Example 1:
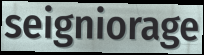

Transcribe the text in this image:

seigniorage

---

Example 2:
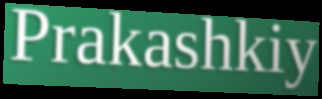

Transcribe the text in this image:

Prakashkiy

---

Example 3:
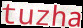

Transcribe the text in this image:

tuzha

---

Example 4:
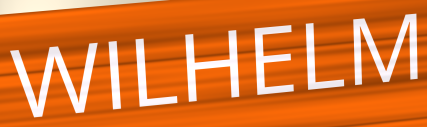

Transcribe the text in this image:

WILHELM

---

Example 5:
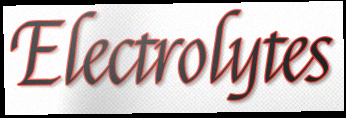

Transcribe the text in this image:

Electrolytes